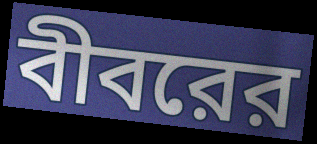
বীবরের